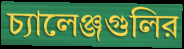
চ্যালেঞ্জগুলির